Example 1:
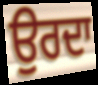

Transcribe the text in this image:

ਉਰਦਾ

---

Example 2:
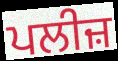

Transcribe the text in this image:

ਪਲੀਜ਼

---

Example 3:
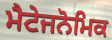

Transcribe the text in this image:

ਮੈਟੇਜਨੋਮਿਕ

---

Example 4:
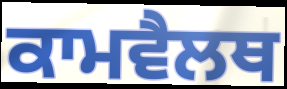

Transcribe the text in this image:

ਕਾਮਵੈਲਥ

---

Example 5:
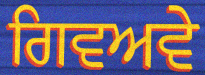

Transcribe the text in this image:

ਗਿਵਅਵੇ